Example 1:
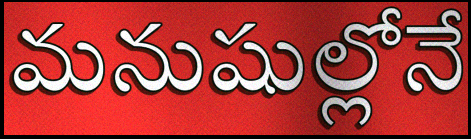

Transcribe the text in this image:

మనుషుల్లోనే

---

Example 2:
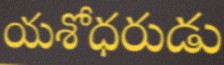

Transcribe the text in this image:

యశోధరుడు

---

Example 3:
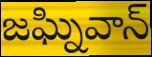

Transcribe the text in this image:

జఘ్నివాన్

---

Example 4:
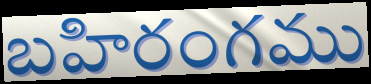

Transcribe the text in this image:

బహిరంగము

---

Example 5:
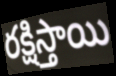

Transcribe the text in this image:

రక్షిస్తాయి